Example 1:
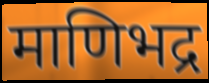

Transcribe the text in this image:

माणिभद्र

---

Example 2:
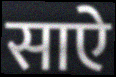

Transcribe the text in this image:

साऐ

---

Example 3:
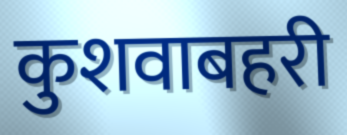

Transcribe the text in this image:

कुशवाबहरी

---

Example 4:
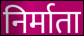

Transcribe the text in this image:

निर्माता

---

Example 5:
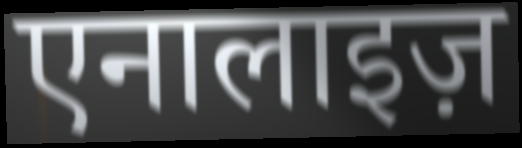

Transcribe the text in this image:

एनालाइज़